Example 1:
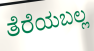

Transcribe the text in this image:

ತೆರೆಯಬಲ್ಲ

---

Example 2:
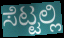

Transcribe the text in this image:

ಸೆಟ್ಟಲ್ಲಿ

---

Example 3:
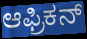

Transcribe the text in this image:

ಆಫ್ರಿಕನ್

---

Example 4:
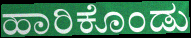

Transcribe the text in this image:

ಹಾರಿಕೊಂಡು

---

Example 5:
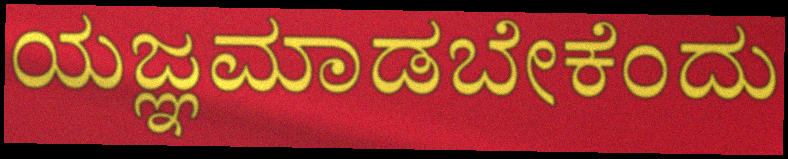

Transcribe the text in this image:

ಯಜ್ಞಮಾಡಬೇಕೆಂದು